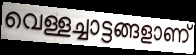
വെള്ളച്ചാട്ടങ്ങളാണ്